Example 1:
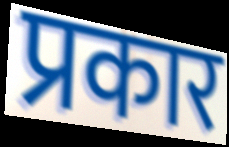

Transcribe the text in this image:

प्रकार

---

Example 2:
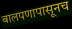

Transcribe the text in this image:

बालपणापासूनच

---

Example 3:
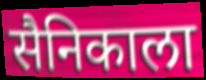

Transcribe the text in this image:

सैनिकाला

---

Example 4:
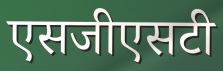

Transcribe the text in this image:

एसजीएसटी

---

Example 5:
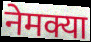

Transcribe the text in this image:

नेमक्या